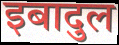
इबादुल